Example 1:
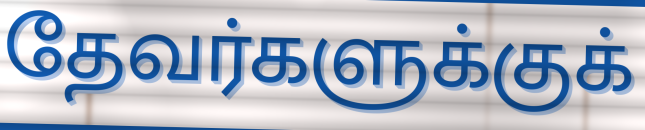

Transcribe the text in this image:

தேவர்களுக்குக்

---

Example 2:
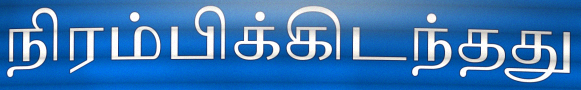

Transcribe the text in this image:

நிரம்பிக்கிடந்தது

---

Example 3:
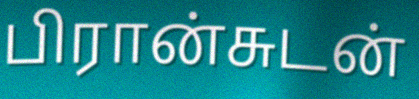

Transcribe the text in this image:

பிரான்சுடன்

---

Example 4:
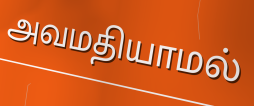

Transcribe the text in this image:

அவமதியாமல்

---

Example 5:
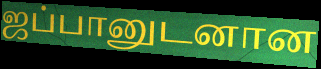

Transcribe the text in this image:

ஜப்பானுடனான